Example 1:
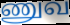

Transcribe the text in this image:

ணுவ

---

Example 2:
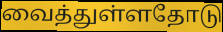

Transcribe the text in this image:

வைத்துள்ளதோடு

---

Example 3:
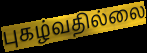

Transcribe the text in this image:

புகழ்வதில்லை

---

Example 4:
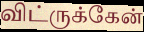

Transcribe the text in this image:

விட்ருக்கேன்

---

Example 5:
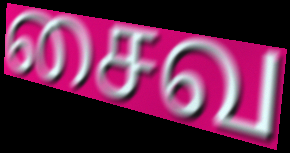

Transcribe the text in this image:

சைவ